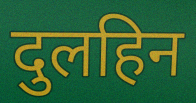
दुलहिन